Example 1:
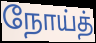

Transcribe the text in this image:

நோய்த்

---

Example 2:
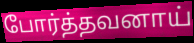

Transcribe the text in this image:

போர்த்தவனாய்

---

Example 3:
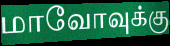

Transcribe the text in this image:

மாவோவுக்கு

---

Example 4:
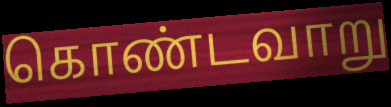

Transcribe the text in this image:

கொண்டவாறு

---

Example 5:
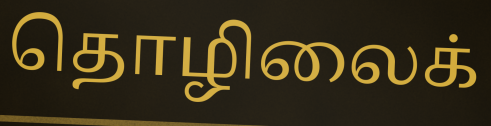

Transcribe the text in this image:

தொழிலைக்